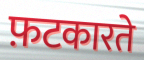
फ़टकारते